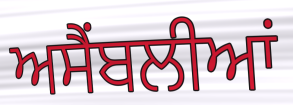
ਅਸੈਂਬਲੀਆਂ